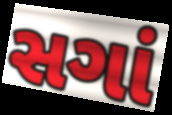
સગાં